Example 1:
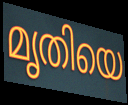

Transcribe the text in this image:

മൃതിയെ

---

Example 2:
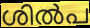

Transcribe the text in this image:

ശിൽപ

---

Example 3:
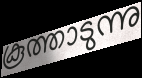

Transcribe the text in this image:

കൂത്താടുന്നു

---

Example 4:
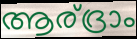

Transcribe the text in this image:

ആര്ദ്രാം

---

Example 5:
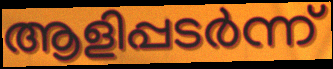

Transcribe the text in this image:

ആളിപ്പടർന്ന്